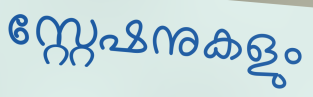
സ്റ്റേഷനുകളും